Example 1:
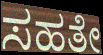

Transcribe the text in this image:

ಸಹತೇ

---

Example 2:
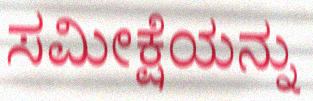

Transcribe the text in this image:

ಸಮೀಕ್ಷೆಯನ್ನು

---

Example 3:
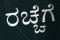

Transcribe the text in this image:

ರಚ್ಚೆಗೆ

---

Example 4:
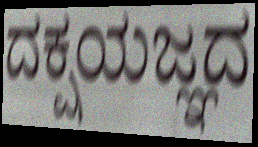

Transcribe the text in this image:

ದಕ್ಷಯಜ್ಞದ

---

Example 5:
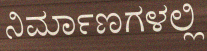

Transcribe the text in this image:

ನಿರ್ಮಾಣಗಳಲ್ಲಿ